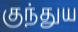
குந்துய